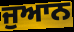
ਜੁਆਨ